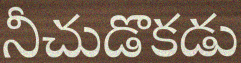
నీచుడొకడు